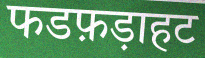
फडफ़ड़ाहट